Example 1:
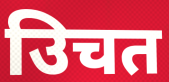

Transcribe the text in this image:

उिचत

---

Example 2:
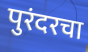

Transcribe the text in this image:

पुरंदरचा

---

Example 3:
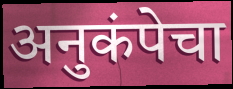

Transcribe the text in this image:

अनुकंपेचा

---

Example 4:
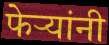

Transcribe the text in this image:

फेऱ्यांनी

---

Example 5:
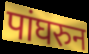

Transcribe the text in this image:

पांघरुन